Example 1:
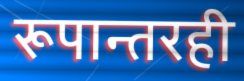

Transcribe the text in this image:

रूपान्तरही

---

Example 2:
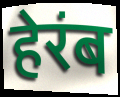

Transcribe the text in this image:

हेरंब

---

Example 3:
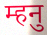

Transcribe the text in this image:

म्हनु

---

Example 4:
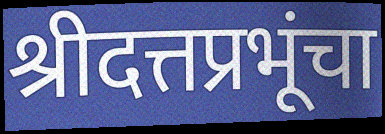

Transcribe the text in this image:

श्रीदत्तप्रभूंचा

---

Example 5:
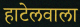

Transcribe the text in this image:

हाटेलवाला